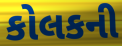
કોલકની